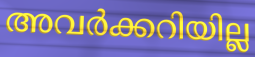
അവർക്കറിയില്ല